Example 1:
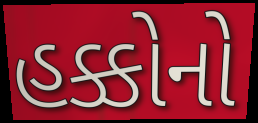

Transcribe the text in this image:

હક્કોનો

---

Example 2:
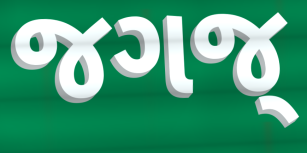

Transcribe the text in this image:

જગજ્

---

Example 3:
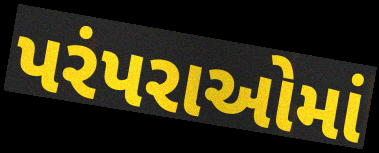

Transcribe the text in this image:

પરંપરાઓમાં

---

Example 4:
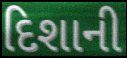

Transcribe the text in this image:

દિશાની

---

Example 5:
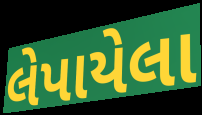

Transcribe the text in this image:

લેપાયેલા